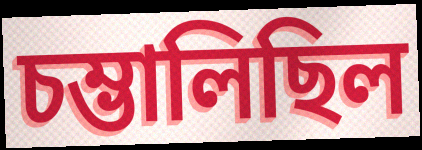
চম্ভালিছিল